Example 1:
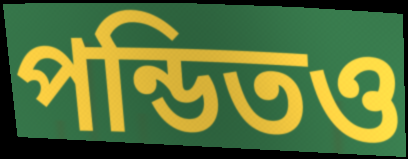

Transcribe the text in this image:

পন্ডিতও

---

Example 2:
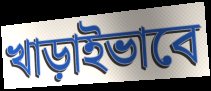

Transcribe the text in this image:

খাড়াইভাবে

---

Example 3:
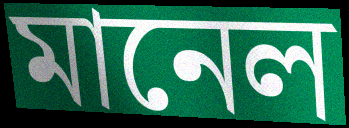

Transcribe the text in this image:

মানেল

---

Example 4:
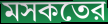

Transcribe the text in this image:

মসকতের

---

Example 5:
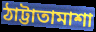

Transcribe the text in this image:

ঠাট্টাতামাশা